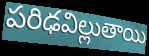
పరిఢవిల్లుతాయి